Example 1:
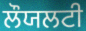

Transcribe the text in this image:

ਲੌਯਲਟੀ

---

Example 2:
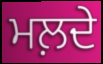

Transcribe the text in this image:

ਮਲ਼ਦੇ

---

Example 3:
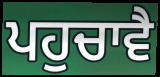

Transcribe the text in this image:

ਪਹੁਚਾਵੈ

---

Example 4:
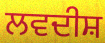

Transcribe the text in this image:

ਲਵਦੀਸ਼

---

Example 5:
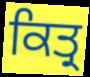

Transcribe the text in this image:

ਕਿਤ੍ਰ